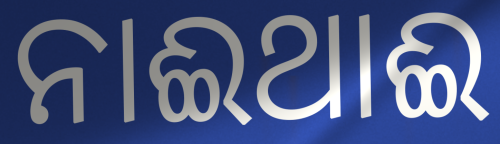
ନାଈଥାଈ